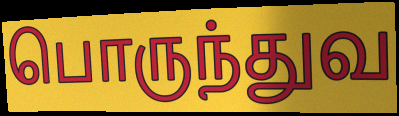
பொருந்துவ